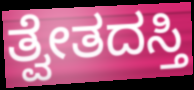
ತ್ವೇತದಸ್ತಿ